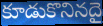
కూడుకొనినదై